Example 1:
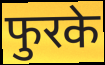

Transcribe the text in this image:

फुरके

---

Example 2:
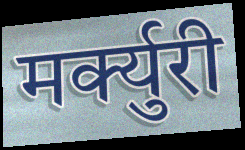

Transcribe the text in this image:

मर्क्युरी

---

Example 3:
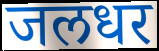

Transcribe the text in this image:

जलधर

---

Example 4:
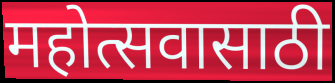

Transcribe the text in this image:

महोत्सवासाठी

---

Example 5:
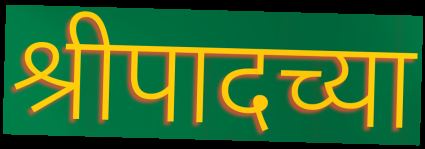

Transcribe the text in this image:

श्रीपादच्या